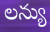
లన్యు